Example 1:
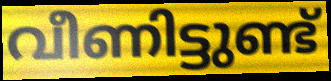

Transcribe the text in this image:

വീണിട്ടുണ്ട്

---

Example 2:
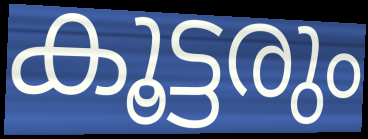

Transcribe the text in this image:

കൂട്ടരും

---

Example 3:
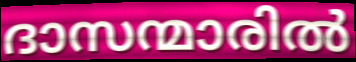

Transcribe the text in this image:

ദാസന്മാരിൽ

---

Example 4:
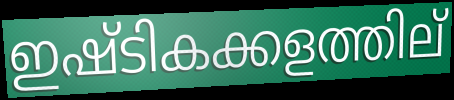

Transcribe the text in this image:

ഇഷ്ടികക്കളത്തില്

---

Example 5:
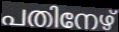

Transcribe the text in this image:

പതിനേഴ്